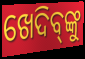
ଖେଦିବ୍‌ଙ୍କୁ